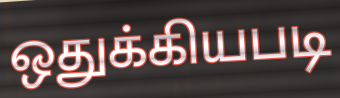
ஒதுக்கியபடி